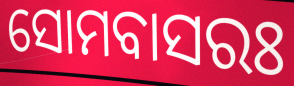
ସୋମବାସରଃ